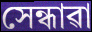
সেন্ধাৱা